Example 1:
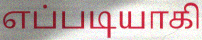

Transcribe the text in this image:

எப்படியாகி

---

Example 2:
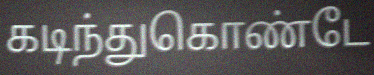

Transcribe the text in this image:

கடிந்துகொண்டே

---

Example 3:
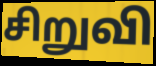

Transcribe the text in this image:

சிறுவி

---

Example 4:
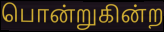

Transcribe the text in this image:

பொன்றுகின்ற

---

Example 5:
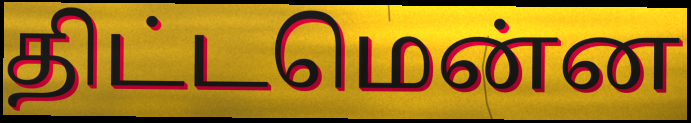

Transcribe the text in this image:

திட்டமென்ன